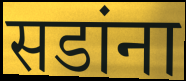
सडांना